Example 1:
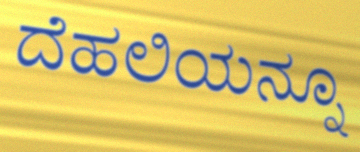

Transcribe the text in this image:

ದೆಹಲಿಯನ್ನೂ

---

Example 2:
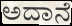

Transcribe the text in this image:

ಅದಾನೆ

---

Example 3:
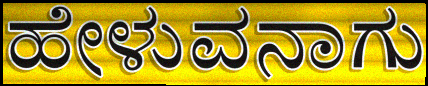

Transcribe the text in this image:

ಹೇಳುವನಾಗು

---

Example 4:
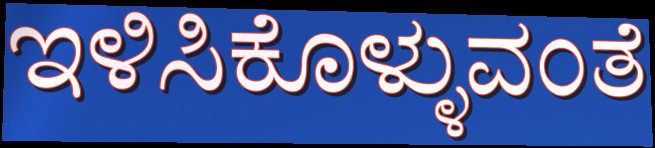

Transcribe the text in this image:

ಇಳಿಸಿಕೊಳ್ಳುವಂತೆ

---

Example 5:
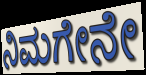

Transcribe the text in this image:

ನಿಮಗೇನೇ